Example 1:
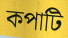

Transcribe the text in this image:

কপাটি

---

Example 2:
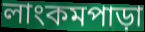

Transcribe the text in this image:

লাংকমপাড়া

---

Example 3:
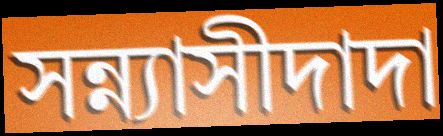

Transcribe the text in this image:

সন্ন্যাসীদাদা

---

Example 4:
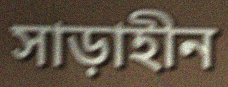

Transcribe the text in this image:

সাড়াহীন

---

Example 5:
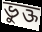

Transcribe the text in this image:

ভুক্ত